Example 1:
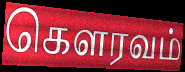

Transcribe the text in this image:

கெளரவம்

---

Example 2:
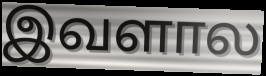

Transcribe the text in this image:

இவளால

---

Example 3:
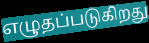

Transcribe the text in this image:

எழுதப்படுகிறது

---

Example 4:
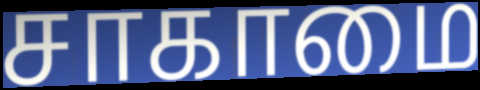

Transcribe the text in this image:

சாகாமை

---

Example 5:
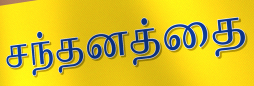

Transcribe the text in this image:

சந்தனத்தை